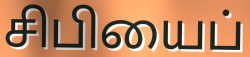
சிபியைப்